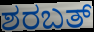
ಶರಬತ್